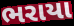
ભરાયા